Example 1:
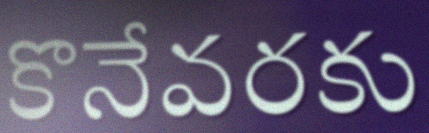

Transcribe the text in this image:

కొనేవరకు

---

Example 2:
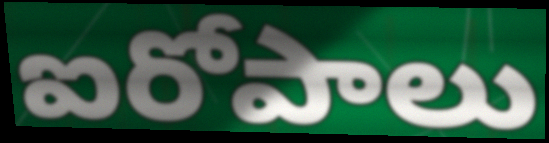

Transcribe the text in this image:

ఐరోపాలు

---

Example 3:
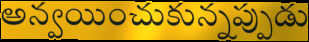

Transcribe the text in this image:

అన్వయించుకున్నప్పుడు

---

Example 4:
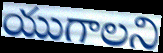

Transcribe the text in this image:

యుగాలని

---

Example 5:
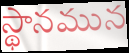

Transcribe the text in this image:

స్థానమున